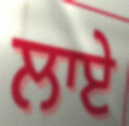
ਲਾਏ